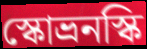
স্কোভ্রনস্কি